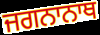
ਜਗਨਾਨਾਥ